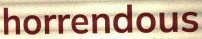
horrendous